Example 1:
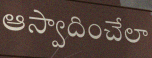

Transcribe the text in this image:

ఆస్వాదించేలా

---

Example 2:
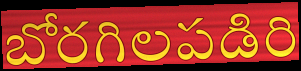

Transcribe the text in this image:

బోరగిలపడిరి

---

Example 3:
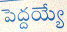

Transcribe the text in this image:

పెద్దయ్యే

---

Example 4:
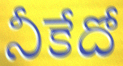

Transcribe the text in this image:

నీకేదో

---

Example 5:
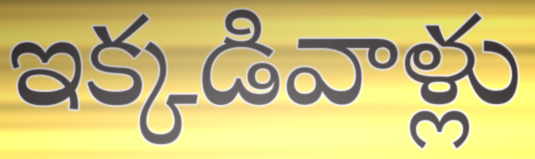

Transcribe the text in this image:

ఇక్కడివాళ్లు